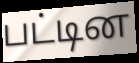
பட்டின